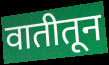
वातीतून